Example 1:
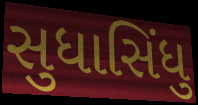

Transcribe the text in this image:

સુધાસિંધુ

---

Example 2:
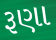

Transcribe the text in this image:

રૂણા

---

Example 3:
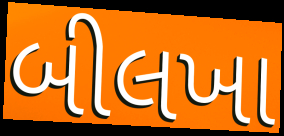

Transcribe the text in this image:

બીલખા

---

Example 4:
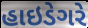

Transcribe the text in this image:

હાઇડેગરે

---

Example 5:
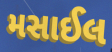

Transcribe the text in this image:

મસાઈલ